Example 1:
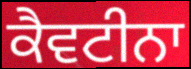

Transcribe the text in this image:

ਕੈਵਟੀਨਾ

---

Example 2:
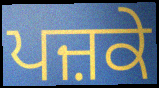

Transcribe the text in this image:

ਪਜ਼ਕੇ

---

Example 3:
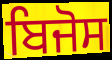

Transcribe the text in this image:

ਬਿਜੋਸ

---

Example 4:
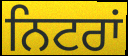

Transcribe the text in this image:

ਨਿਟਰਾਂ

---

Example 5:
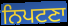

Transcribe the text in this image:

ਨਿਪਟਣਾ